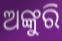
ଅଙ୍କୁରି